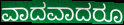
ವಾದವಾದರೂ